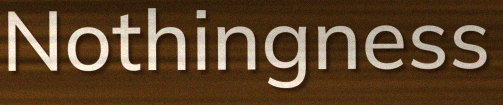
Nothingness